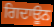
ਗਿਦਾਊਨ